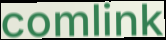
comlink